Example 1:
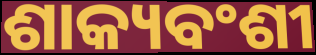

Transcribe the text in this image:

ଶାକ୍ୟବଂଶୀ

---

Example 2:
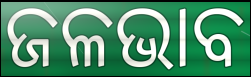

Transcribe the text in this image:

ଜଳଭାବ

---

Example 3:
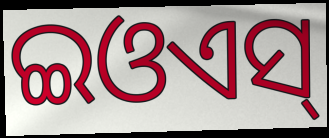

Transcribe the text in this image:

ଇଓଏସ୍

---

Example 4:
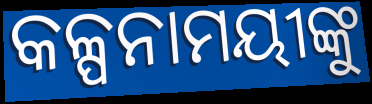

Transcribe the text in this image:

କଳ୍ପନାମୟୀଙ୍କୁ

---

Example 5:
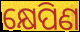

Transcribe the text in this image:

କ୍ଷେପିଣ